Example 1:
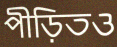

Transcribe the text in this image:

পীড়িতও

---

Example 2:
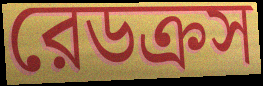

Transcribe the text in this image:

রেডক্রস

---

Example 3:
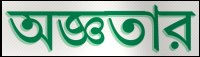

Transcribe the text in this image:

অজ্ঞতার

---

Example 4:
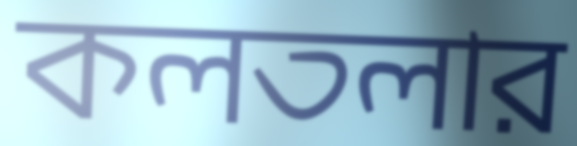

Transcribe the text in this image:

কলতলার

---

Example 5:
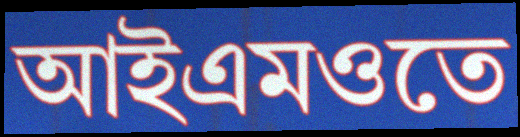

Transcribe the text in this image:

আইএমওতে